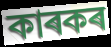
কাৰকৰ